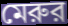
মেরুর